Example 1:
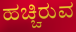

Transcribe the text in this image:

ಹಚ್ಚಿರುವ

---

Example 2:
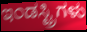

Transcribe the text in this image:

ಇಂಡಸ್ಟ್ರಿಗಳು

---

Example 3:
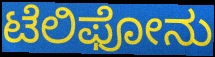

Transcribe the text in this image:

ಟೆಲಿಫೋನು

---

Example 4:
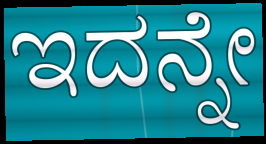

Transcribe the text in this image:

ಇದನ್ನೇ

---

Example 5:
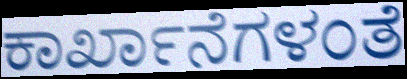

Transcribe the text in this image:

ಕಾರ್ಖಾನೆಗಳಂತೆ